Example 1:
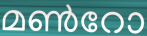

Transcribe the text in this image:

മൺറോ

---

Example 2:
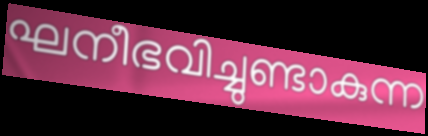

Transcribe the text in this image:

ഘനീഭവിച്ചുണ്ടാകുന്ന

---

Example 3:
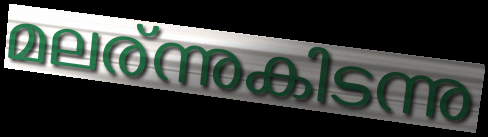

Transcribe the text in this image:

മലര്ന്നുകിടന്നു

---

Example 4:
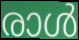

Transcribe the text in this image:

രാൾ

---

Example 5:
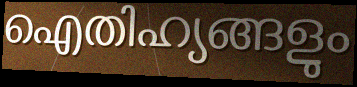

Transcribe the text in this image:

ഐതിഹ്യങ്ങളും